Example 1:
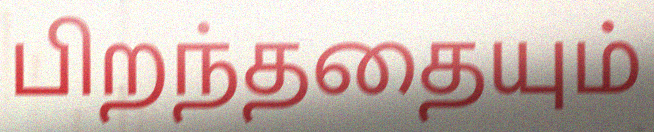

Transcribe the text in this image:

பிறந்ததையும்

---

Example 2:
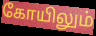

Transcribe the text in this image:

கோயிலும்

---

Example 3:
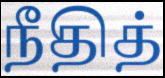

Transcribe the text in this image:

நீதித்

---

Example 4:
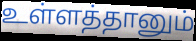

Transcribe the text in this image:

உள்ளத்தானும்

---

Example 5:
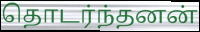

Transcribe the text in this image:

தொடர்ந்தனன்